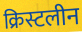
क्रिस्टलीन